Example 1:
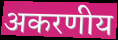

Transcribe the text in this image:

अकरणीय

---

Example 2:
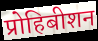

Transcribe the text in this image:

प्रोहिबीशन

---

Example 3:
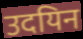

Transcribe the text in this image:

उदयिन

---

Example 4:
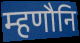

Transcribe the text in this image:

म्हणौनि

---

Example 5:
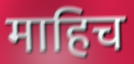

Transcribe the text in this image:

माहिच